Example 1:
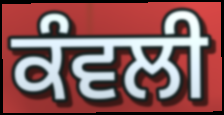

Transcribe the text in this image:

ਕੰਵਲੀ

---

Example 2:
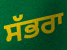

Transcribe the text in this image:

ਸੱਭਰਾ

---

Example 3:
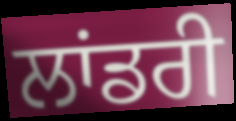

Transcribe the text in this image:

ਲਾਂਡਰੀ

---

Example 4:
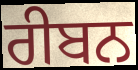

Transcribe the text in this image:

ਰੀਬਨ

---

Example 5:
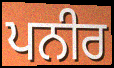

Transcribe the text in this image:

ਪਨੀਰ